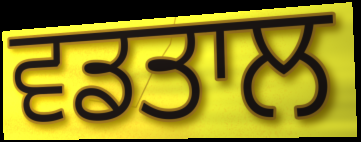
ਵਡਤਾਲ